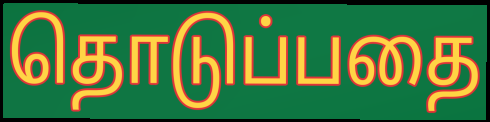
தொடுப்பதை